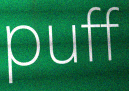
puff